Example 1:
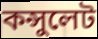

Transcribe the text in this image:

কন্সুলেট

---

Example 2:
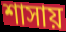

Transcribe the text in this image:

শাসায়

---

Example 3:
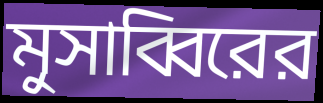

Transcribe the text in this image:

মুসাব্বিরের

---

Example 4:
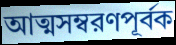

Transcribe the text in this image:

আত্মসম্বরণপূর্বক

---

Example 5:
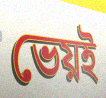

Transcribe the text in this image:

ভেয়ই